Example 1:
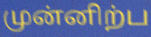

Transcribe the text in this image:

முன்னிற்ப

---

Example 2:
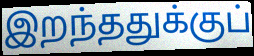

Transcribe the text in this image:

இறந்ததுக்குப்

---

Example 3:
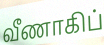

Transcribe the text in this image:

வீணாகிப்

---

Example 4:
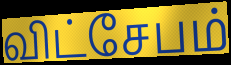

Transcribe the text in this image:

விட்சேபம்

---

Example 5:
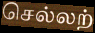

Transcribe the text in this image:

செல்லற்